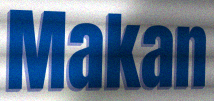
Makan